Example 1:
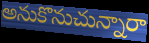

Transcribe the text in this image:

అనుకొనుచున్నారా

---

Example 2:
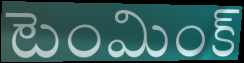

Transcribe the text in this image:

టెంమింక్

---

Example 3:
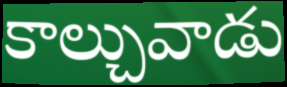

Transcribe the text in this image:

కాల్చువాడు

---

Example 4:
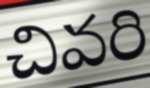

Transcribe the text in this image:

చివరి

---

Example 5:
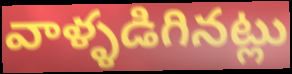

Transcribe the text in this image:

వాళ్ళడిగినట్లు